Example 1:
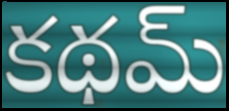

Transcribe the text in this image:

కథమ్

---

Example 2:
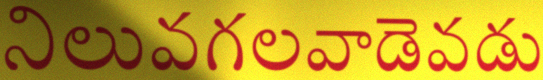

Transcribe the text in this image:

నిలువగలవాడెవడు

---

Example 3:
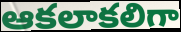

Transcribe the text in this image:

ఆకలాకలిగా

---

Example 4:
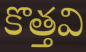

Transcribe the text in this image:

కొత్తవి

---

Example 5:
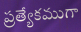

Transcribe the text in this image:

ప్రత్యేకముగా